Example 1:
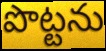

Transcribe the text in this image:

పొట్టను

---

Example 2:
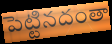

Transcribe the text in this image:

పెట్టినదంతా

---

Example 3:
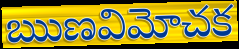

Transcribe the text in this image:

ఋణవిమోచక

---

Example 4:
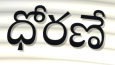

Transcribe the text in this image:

ధోరణే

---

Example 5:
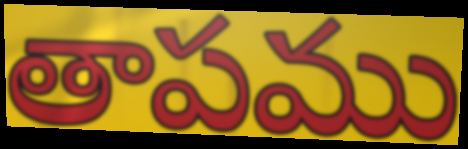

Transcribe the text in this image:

తాపము